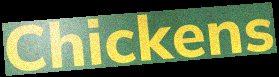
Chickens